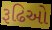
રૂઢિઓ